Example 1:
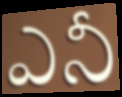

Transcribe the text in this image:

ఎనీ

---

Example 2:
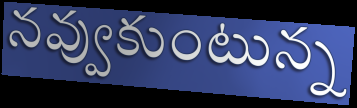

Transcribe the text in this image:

నవ్వుకుంటున్న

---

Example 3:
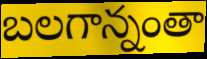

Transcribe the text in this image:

బలగాన్నంతా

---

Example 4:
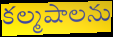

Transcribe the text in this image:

కల్మషాలను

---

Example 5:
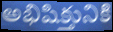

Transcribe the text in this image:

అభిషిక్తునికి